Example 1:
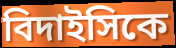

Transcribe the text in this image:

বিদাইসিকে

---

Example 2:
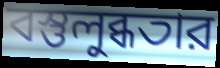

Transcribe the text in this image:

বস্তুলুব্ধতার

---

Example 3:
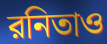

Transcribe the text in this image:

রনিতাও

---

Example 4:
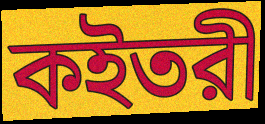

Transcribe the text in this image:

কইতরী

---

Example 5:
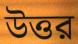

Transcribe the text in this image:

উত্তর